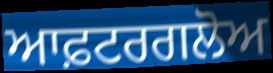
ਆਫ਼ਟਰਗਲੋਅ